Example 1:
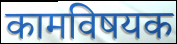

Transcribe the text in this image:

कामविषयक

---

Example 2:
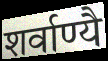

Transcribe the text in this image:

शर्वाण्यै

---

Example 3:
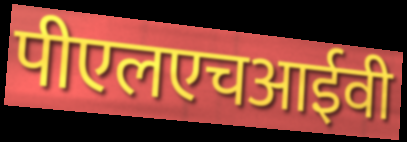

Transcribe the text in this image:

पीएलएचआईवी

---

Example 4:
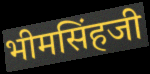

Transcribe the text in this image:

भीमसिंहजी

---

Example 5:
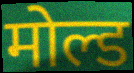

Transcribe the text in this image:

मोल्ड